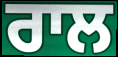
ਰਾਲ